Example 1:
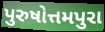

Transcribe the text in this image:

પુરુષોત્તમપુરા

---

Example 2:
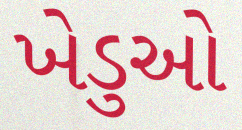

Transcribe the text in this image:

ખેડુઓ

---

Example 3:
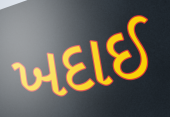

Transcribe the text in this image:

ખદાઈ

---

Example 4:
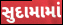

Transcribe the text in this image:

સુદામામાં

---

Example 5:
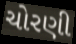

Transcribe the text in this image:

ચોરણી